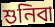
শুনিবা